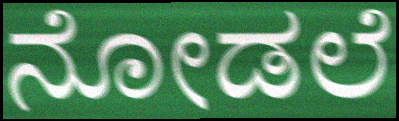
ನೋಡಲೆ